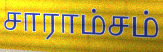
சாராம்சம்